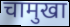
चामुखा